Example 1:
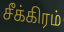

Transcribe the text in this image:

சீக்கிரம்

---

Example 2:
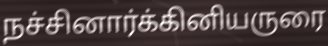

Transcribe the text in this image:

நச்சினார்க்கினியருரை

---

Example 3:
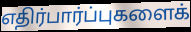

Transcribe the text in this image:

எதிர்பார்ப்புகளைக்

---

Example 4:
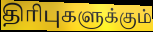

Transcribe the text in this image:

திரிபுகளுக்கும்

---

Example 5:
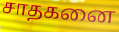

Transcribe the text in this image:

சாதகனை